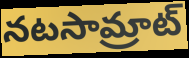
నటసామ్రాట్